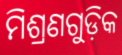
ମିଶ୍ରଣଗୁଡ଼ିକ